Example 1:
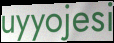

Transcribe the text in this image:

uyyojesi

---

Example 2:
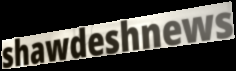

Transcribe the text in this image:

shawdeshnews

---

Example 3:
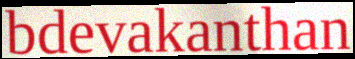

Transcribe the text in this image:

bdevakanthan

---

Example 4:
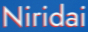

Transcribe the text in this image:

Niridai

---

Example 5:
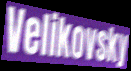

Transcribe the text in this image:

Velikovsky